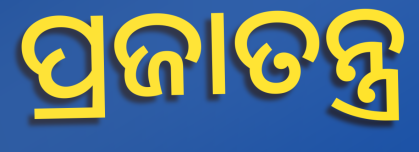
ପ୍ରଜାତନ୍ତ୍ର